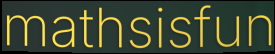
mathsisfun